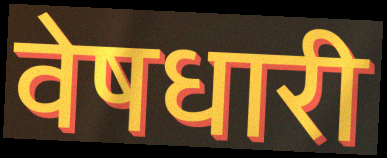
वेषधारी